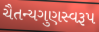
ચૈતન્યગુણસ્વરૂપ